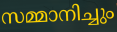
സമ്മാനിച്ചും